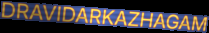
DRAVIDARKAZHAGAM